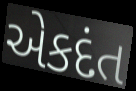
એકદંત